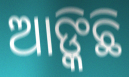
ଆଙ୍କିଛି